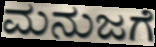
ಮನುಜಗೆ